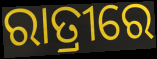
ରାତ୍ରୀରେ